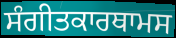
ਸੰਗੀਤਕਾਰਥਾਮਸ